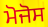
ਮੋਜੋਸ